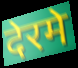
देरमे